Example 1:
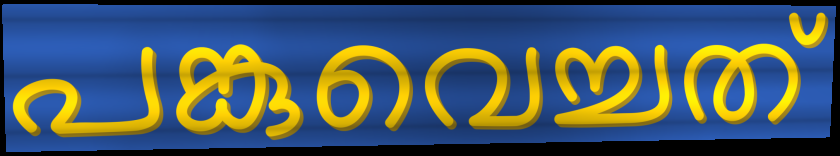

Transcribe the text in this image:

പങ്കുവെച്ചത്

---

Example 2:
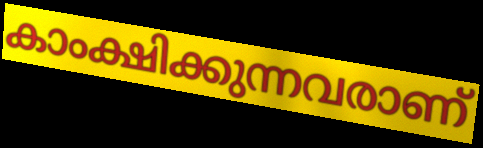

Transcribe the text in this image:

കാംക്ഷിക്കുന്നവരാണ്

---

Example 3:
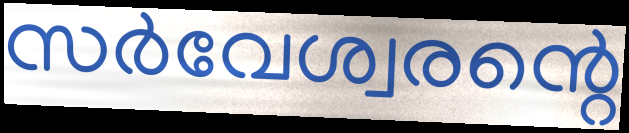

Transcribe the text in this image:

സർവേശ്വരന്റെ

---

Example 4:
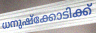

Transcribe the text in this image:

ധനുഷ്ക്കോടിക്ക്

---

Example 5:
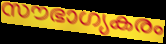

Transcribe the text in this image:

സൗഭാഗ്യകരം